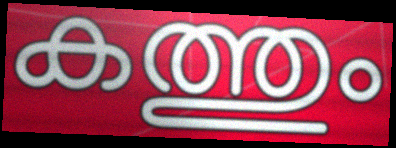
കത്തും